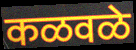
कळवळे